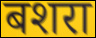
बशरा